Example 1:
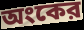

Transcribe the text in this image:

অংকের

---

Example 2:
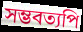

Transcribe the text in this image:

সম্ভবত্যপি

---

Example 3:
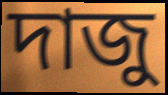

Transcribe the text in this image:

দাজু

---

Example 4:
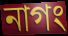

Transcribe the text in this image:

নাগং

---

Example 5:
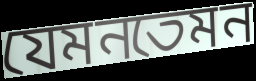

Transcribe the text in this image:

যেমনতেমন